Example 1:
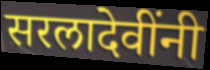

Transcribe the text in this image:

सरलादेवींनी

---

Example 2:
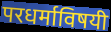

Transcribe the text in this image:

परधर्माविषयी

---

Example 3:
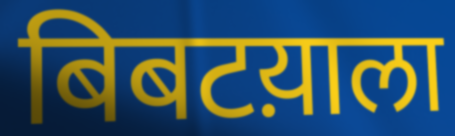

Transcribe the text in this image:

बिबटय़ाला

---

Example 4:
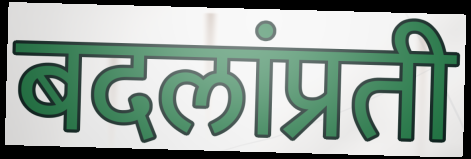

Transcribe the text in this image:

बदलांप्रती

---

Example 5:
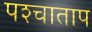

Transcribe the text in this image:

पश्चाताप